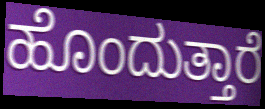
ಹೊಂದುತ್ತಾರೆ